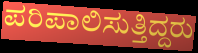
ಪರಿಪಾಲಿಸುತ್ತಿದ್ದರು